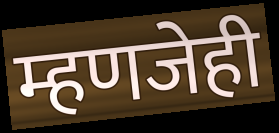
म्हणजेही